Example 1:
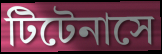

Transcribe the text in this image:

টিটেনাসে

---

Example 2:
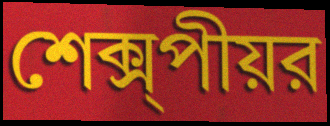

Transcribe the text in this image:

শেক্স্পীয়র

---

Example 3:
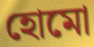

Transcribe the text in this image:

হোমো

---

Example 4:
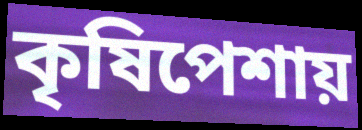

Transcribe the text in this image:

কৃষিপেশায়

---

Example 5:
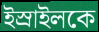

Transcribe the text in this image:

ইস্রাইলকে